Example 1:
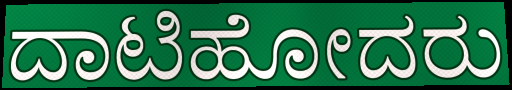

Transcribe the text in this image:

ದಾಟಿಹೋದರು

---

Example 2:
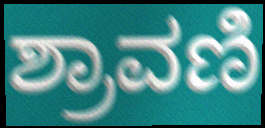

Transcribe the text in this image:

ಶ್ರಾವಣಿ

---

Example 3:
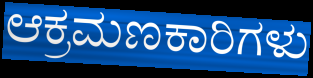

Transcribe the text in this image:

ಆಕ್ರಮಣಕಾರಿಗಳು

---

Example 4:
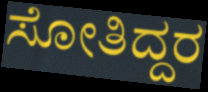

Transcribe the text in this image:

ಸೋತಿದ್ದರ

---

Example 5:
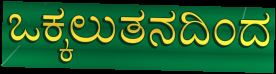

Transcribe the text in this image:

ಒಕ್ಕಲುತನದಿಂದ